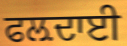
ਫਲ਼ਦਾਈ